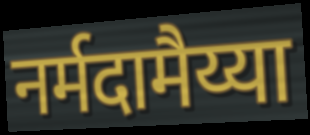
नर्मदामैय्या